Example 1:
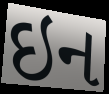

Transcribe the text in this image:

ઇન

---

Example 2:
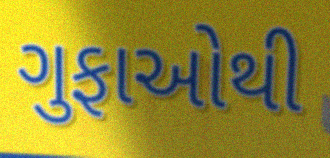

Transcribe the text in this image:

ગુફાઓથી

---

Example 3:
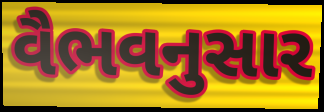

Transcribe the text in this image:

વૈભવનુસાર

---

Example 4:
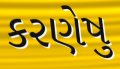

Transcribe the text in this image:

કરણેષુ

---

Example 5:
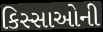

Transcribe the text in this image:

કિસ્સાઓની